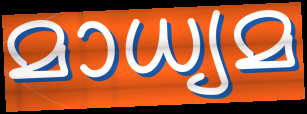
മാധ്യമ